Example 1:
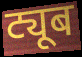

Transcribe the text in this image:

ट्यूब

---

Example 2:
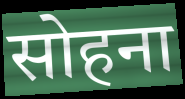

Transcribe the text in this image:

सोहना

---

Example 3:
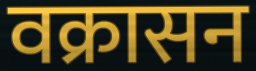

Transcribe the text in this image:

वक्रासन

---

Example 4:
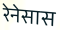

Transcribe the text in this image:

रेनेसास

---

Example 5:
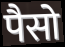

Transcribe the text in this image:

पैसो